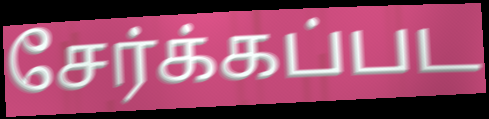
சேர்க்கப்பட